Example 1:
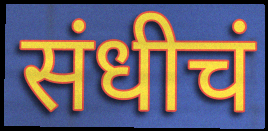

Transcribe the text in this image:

संधीचं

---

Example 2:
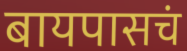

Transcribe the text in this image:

बायपासचं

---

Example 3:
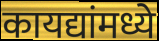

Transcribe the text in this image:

कायद्यांमध्ये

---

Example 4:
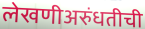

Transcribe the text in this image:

लेखणीअरुंधतीची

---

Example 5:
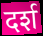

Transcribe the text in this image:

दर्श